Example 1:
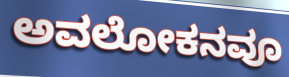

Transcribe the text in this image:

ಅವಲೋಕನವೂ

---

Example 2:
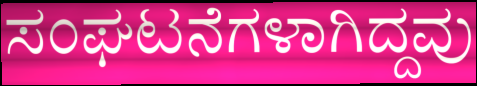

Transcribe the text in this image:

ಸಂಘಟನೆಗಳಾಗಿದ್ದವು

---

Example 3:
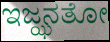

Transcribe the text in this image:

ಇಜ್ಝನತೋ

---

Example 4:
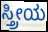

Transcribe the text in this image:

ಸ್ತ್ರೀಯ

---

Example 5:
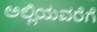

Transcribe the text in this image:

ಅಲ್ಲಿಯವರೆಗೆ